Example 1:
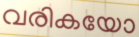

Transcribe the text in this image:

വരികയോ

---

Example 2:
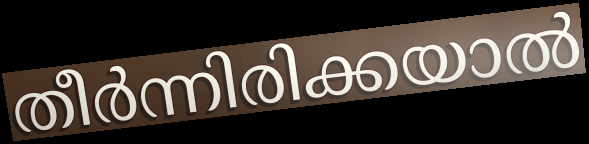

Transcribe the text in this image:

തീർന്നിരിക്കയാൽ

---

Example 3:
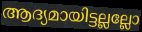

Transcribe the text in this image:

ആദ്യമായിട്ടല്ലല്ലോ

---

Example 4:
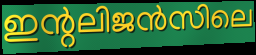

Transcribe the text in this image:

ഇന്റലിജൻസിലെ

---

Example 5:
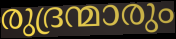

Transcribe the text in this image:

രുദ്രന്മാരും